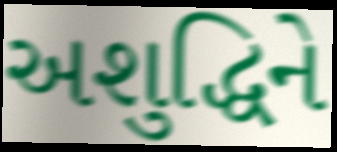
અશુદ્ધિને